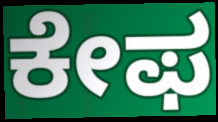
ಕೇಫ